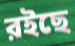
রইছে